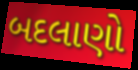
બદલાણો